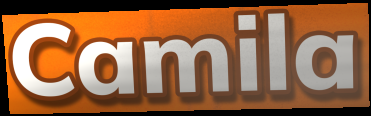
Camila